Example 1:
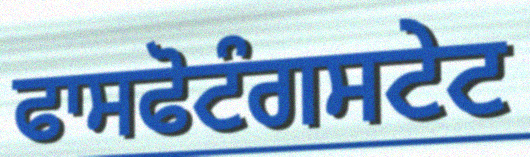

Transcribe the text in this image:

ਫਾਸਫੋਟੰਗਸਟੇਟ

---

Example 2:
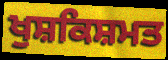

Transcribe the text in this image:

ਖੁਸ਼ਕਿਸ਼ਮਤ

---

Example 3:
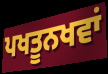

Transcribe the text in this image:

ਪਖਤੂਨਖਵਾਂ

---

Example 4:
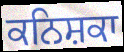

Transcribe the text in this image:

ਕਨਿਸ਼ਕਾ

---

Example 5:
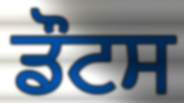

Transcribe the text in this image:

ਡੌਟਸ